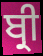
ਬ੍ਰੀ